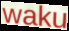
waku